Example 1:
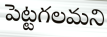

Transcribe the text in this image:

పెట్టగలమని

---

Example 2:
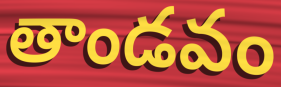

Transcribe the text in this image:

తాండవం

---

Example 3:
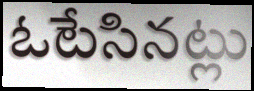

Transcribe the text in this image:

ఓటేసినట్లు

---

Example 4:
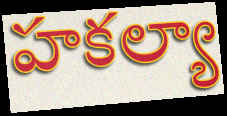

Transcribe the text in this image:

హకల్యా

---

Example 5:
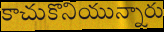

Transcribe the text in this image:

కాచుకొనియున్నారు